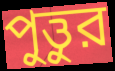
পুত্তুর